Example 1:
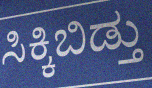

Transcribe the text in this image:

ಸಿಕ್ಕಿಬಿಡ್ತು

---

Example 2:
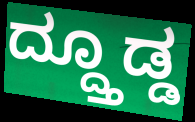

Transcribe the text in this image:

ದ್ದ್ತೂಡ್ಡ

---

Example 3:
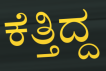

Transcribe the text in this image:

ಕೆತ್ತಿದ್ದ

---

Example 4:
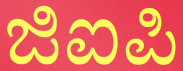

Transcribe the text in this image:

ಜಿಐಪಿ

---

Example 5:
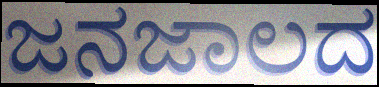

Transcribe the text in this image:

ಜನಜಾಲದ